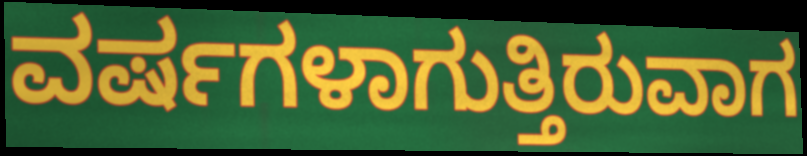
ವರ್ಷಗಳಾಗುತ್ತಿರುವಾಗ